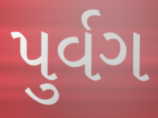
પુર્વગ